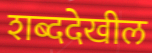
शब्ददेखील